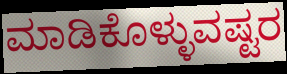
ಮಾಡಿಕೊಳ್ಳುವಷ್ಟರ